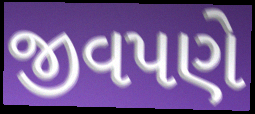
જીવપણે